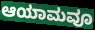
ಆಯಾಮವೂ